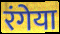
रंगेया